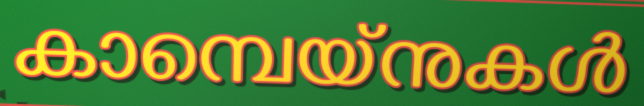
കാമ്പെയ്നുകൾ